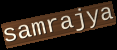
samrajya